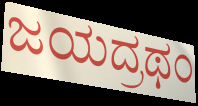
ಜಯದ್ರಥಂ